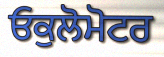
ਓਕੁਲੋਮੋਟਰ